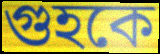
গুহকে